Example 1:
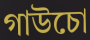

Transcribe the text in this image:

গাউচো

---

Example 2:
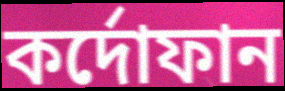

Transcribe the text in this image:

কর্দোফান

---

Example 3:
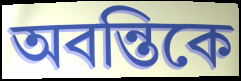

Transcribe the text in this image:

অবন্তিকে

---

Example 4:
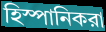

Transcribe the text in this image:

হিস্পানিকরা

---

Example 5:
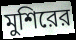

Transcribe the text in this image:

মুশিরের